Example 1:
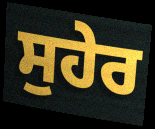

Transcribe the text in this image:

ਸੁਹੇਰ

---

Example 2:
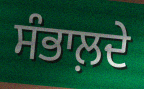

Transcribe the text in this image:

ਸੰਭਾਲ਼ਦੇ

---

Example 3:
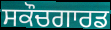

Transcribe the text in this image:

ਸਕੌਚਗਾਰਡ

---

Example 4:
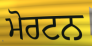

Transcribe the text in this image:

ਮੋਰਟਨ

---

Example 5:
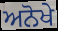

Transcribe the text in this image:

ਅਨੋਖੇ